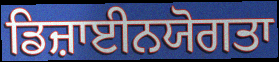
ਡਿਜ਼ਾਈਨਯੋਗਤਾ